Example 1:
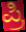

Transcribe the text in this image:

ಪ್ರಿ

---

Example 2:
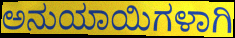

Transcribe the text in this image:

ಅನುಯಾಯಿಗಳಾಗಿ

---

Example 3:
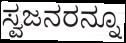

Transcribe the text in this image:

ಸ್ವಜನರನ್ನೂ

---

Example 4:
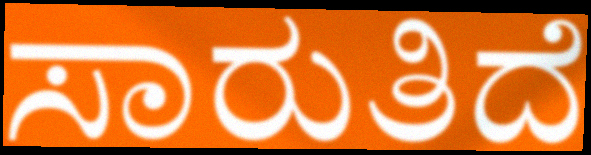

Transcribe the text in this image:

ಸಾರುತಿದೆ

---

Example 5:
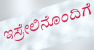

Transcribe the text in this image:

ಇಸ್ರೇಲಿನೊಂದಿಗೆ